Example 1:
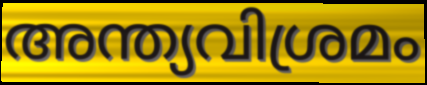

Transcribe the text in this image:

അന്ത്യവിശ്രമം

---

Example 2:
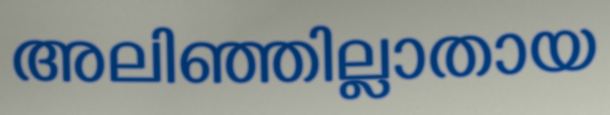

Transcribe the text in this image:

അലിഞ്ഞില്ലാതായ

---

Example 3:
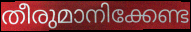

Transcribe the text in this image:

തീരുമാനിക്കേണ്ട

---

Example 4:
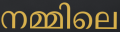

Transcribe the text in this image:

നമ്മിലെ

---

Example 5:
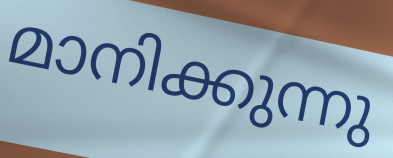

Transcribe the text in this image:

മാനിക്കുന്നു